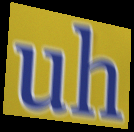
uh